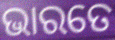
ଭାରତେ